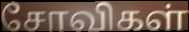
சோவிகள்